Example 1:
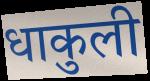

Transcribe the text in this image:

धाकुली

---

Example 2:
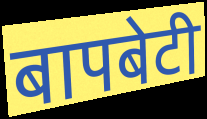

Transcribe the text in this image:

बापबेटी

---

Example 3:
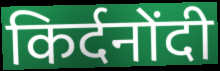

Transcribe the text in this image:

किर्दनोंदी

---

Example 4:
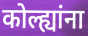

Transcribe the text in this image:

कोल्ह्यांना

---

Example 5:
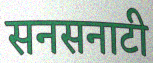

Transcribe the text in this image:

सनसनाटी